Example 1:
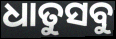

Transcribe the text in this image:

ଧାତୁସବୁ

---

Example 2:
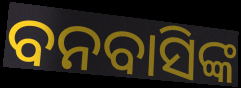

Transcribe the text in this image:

ବନବାସିଙ୍କ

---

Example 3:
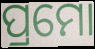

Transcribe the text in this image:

ପ୍ରମୋ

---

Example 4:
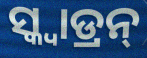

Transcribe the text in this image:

ସ୍କ୍ୱାଡ୍ରନ୍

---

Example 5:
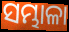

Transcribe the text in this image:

ସମ୍ଭାଳା